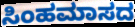
ಸಿಂಹಮಾಸದ